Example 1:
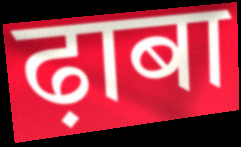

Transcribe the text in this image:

ढ़ाबा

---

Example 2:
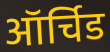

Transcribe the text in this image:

ऑर्चिड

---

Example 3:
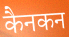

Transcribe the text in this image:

कैनकन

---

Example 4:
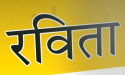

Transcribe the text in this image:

रविता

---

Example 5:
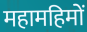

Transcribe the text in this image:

महामहिमों